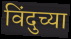
विंदुच्या